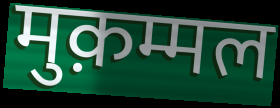
मुक़म्मल